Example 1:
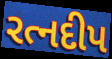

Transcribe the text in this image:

રત્નદીપ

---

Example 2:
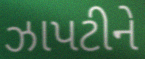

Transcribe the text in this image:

ઝાપટીને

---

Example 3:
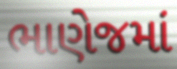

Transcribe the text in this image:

ભાણેજમાં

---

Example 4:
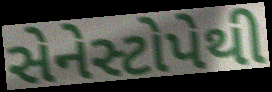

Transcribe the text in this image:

સેનેસ્ટોપેથી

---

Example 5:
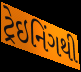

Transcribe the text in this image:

ટ્રેઇનિંગથી